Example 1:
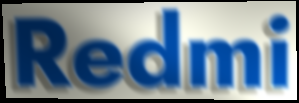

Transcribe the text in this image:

Redmi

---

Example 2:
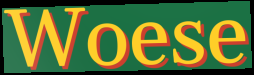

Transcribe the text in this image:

Woese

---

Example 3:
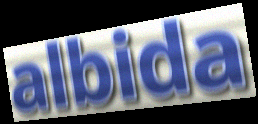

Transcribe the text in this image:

albida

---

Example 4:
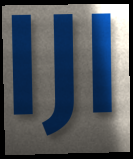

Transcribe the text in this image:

IJI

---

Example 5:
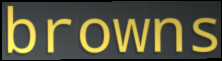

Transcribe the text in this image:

browns